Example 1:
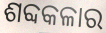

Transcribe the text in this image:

ଶବ୍ଦକଳାର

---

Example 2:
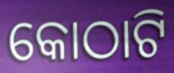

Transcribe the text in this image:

କୋଠାଟି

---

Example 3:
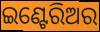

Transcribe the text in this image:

ଇଣ୍ଟେରିଅର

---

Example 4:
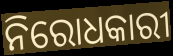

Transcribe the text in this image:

ନିରୋଧକାରୀ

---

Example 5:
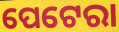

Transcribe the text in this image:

ପେଟେରା